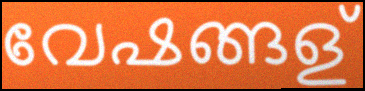
വേഷങ്ങള്